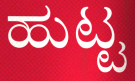
ಹುಟ್ಟ